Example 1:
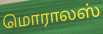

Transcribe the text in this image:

மொராலஸ்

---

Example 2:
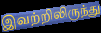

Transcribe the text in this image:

இவற்றிலிருந்து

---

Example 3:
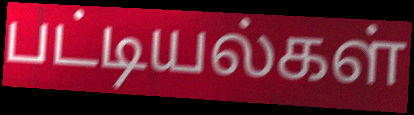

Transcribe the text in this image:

பட்டியல்கள்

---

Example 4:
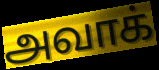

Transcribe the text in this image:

அவாக்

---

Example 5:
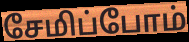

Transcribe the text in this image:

சேமிப்போம்